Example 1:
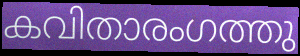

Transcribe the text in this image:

കവിതാരംഗത്തു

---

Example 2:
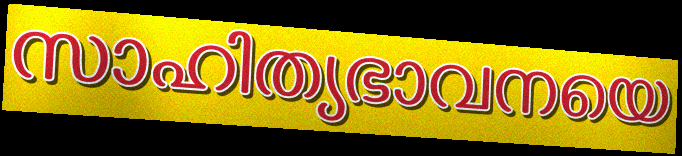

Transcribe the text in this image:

സാഹിത്യഭാവനയെ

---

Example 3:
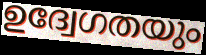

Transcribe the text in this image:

ഉദ്വേഗതയും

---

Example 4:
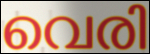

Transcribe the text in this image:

വെരി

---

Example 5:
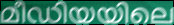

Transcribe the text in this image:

മീഡിയയിലെ